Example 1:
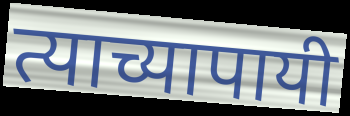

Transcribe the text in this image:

त्याच्यापायी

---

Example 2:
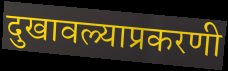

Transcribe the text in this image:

दुखावल्याप्रकरणी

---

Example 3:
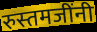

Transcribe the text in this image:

रुस्तमजींनी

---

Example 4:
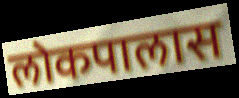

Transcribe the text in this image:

लोकपालास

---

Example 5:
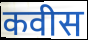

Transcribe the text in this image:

कवीस